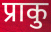
प्राकु